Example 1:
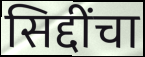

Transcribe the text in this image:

सिद्दींचा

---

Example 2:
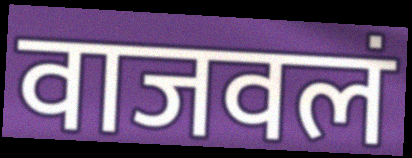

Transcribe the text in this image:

वाजवलं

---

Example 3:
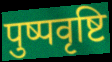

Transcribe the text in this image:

पुष्पवृष्टि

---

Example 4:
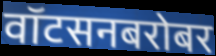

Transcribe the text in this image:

वॉटसनबरोबर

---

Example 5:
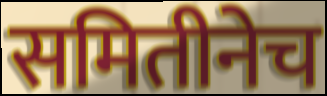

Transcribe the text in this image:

समितीनेच